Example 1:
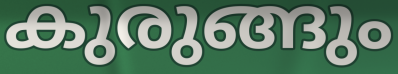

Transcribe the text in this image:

കുരുങ്ങും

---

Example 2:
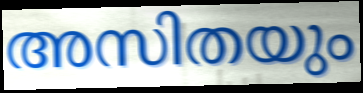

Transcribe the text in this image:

അസിതയും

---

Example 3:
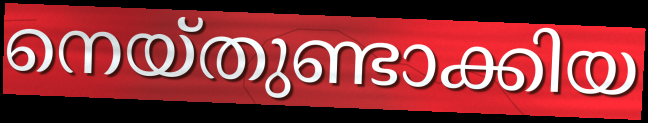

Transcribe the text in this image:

നെയ്തുണ്ടാക്കിയ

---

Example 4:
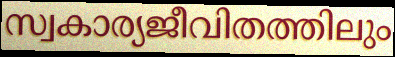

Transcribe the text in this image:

സ്വകാര്യജീവിതത്തിലും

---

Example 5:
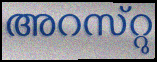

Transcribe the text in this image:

അറസ്‌റ്റു